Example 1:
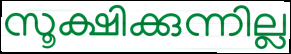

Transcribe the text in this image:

സൂക്ഷിക്കുന്നില്ല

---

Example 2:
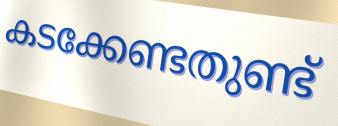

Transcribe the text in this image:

കടക്കേണ്ടതുണ്ട്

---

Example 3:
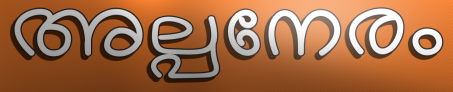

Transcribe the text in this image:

അല്പനേരം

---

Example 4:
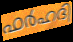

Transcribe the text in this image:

ഫർഹദി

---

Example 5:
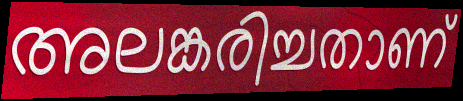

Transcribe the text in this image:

അലങ്കരിച്ചതാണ്